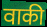
वाकी